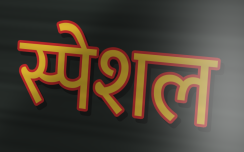
स्‍पेशल